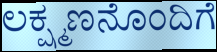
ಲಕ್ಷ್ಮಣನೊಂದಿಗೆ